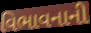
વિભાવનાની